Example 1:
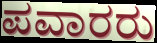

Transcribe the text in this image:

ಪವಾರರು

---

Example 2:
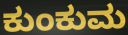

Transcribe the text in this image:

ಕುಂಕುಮ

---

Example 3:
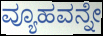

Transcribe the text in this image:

ವ್ಯೂಹವನ್ನೇ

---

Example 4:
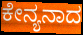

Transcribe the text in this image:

ಕೇನ್ಯನಾದ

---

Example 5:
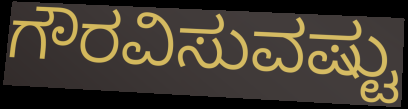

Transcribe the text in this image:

ಗೌರವಿಸುವಷ್ಟು